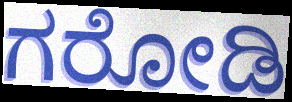
ಗರೋಡಿ